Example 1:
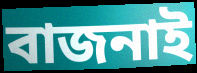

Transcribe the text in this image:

বাজনাই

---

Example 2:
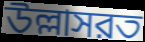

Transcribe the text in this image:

উল্লাসরত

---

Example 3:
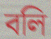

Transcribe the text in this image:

বলি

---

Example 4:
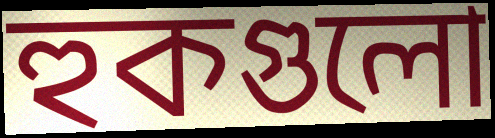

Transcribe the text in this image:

হুকগুলো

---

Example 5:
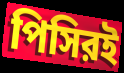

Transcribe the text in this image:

পিসিরই